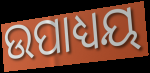
ଉପାଧ୍ୟୟ